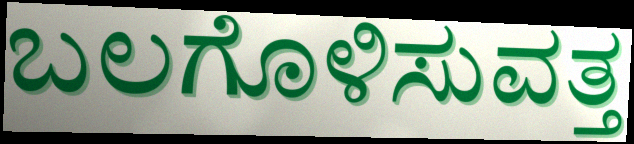
ಬಲಗೊಳಿಸುವತ್ತ